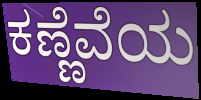
ಕಣ್ಣೆವೆಯ